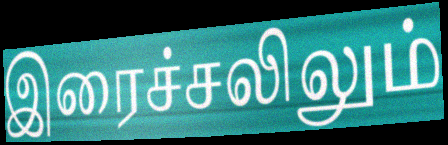
இரைச்சலிலும்